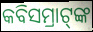
କବିସମ୍ରାଟ୍‌ଙ୍କ